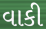
વાકી